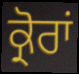
ਕ੍ਰੋਰਾਂ